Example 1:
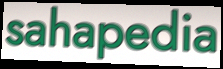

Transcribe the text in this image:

sahapedia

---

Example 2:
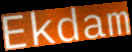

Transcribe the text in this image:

Ekdam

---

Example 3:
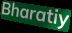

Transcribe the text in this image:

Bharatiy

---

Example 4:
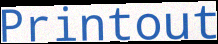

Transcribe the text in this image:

Printout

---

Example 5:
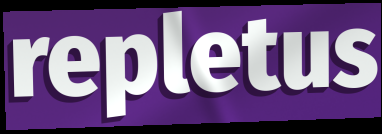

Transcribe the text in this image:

repletus